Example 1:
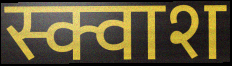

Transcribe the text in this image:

स्क्वाश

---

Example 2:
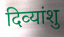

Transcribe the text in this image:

दिव्‍यांशु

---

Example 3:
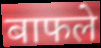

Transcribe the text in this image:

बाफले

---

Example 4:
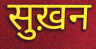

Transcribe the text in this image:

सुख़न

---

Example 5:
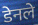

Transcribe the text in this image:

डेनले